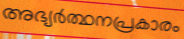
അഭ്യർത്ഥനപ്രകാരം